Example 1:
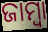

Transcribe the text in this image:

ଜାମ୍ବା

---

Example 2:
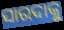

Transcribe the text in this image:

ସାରଦାକୁ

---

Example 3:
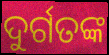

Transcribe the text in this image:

ଦୁର୍ଗତଙ୍କ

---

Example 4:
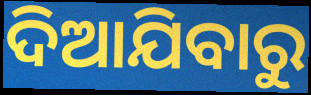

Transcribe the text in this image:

ଦିଆଯିବାରୁ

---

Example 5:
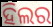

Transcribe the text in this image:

ହିଲର